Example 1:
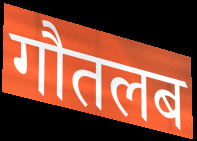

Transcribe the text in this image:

गौतलब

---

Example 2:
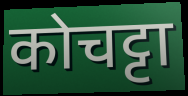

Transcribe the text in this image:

कोचट्टा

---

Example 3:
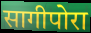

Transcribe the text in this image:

सागीपोरा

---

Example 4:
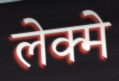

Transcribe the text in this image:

लेक्मे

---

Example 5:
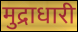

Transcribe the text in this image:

मुद्राधारी